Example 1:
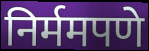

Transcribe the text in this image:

निर्ममपणे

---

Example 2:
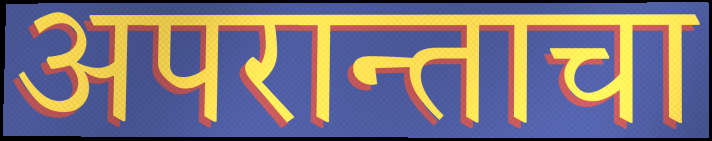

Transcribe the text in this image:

अपरान्ताचा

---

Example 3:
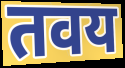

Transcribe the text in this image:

तवय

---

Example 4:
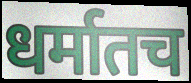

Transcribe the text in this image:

धर्मातच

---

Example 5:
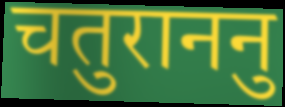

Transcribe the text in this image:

चतुराननु